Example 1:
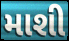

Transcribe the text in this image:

માશી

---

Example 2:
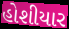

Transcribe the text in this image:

હોશીયાર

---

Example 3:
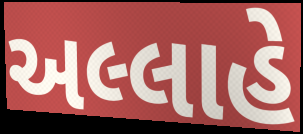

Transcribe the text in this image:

અલ્લાહે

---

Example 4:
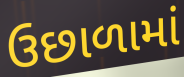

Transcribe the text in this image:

ઉછાળામાં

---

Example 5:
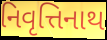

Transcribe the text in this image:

નિવૃત્તિનાથ